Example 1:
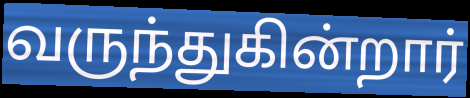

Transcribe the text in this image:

வருந்துகின்றார்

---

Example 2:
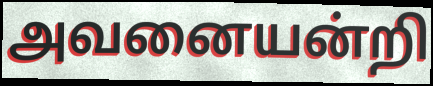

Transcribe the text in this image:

அவனையன்றி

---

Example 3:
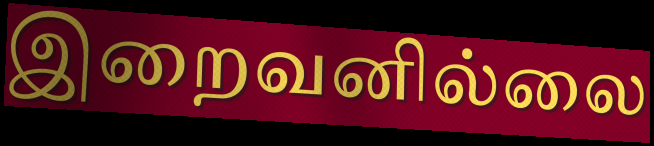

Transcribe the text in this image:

இறைவனில்லை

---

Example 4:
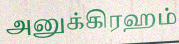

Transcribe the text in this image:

அனுக்கிரஹம்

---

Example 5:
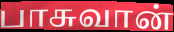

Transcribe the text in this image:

பாசுவான்